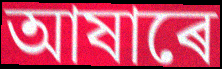
আষাৰে